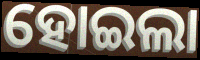
ହୋଇଲା